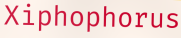
Xiphophorus